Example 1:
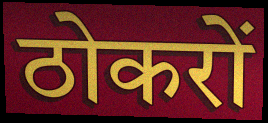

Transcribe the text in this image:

ठोकरों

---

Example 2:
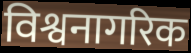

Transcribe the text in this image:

विश्वनागरिक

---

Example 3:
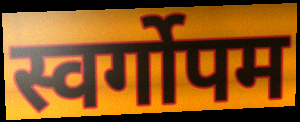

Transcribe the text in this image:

स्वर्गोपम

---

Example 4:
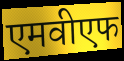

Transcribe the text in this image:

एमवीएफ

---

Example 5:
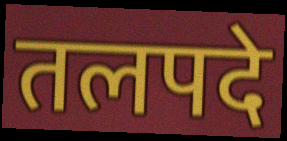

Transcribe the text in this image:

तलपदे